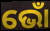
ଭୋଁ